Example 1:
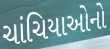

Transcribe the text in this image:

ચાંચિયાઓનો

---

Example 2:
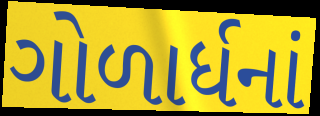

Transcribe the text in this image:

ગોળાર્ધનાં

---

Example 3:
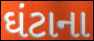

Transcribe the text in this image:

ઘંટાના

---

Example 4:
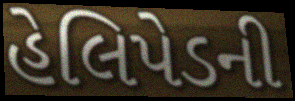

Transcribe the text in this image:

હેલિપેડની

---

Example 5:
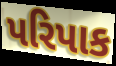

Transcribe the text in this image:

પરિપાક